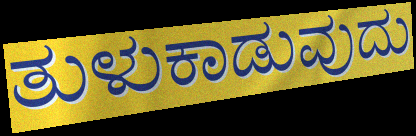
ತುಳುಕಾಡುವುದು